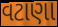
વટાણા